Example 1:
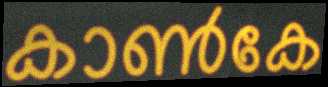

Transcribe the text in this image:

കാൺകേ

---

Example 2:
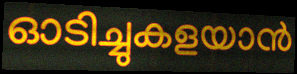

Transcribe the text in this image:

ഓടിച്ചുകളയാൻ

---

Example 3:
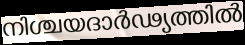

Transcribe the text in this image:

നിശ്ചയദാർഢ്യത്തിൽ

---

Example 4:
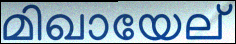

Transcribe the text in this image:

മിഖായേല്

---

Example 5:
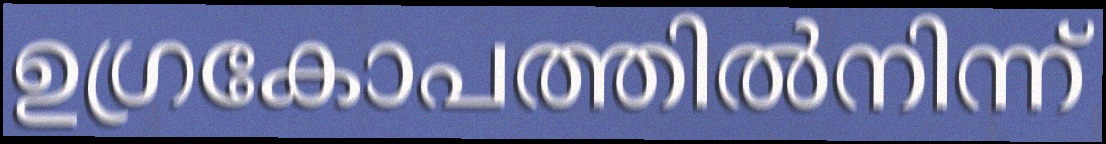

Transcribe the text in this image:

ഉഗ്രകോപത്തിൽനിന്ന്